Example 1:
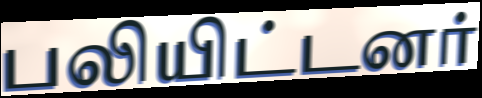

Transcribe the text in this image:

பலியிட்டனர்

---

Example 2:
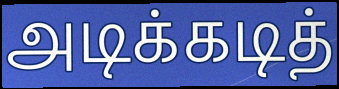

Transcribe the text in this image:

அடிக்கடித்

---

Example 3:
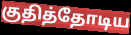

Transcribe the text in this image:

குதித்தோடிய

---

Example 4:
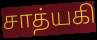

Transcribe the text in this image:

சாத்யகி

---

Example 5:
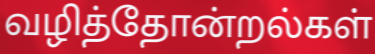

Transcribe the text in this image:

வழித்தோன்றல்கள்